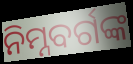
ନିମ୍ନବର୍ଗଙ୍କ